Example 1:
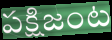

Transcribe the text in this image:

పక్షిజంట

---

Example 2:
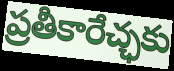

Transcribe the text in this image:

ప్రతీకారేచ్ఛకు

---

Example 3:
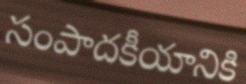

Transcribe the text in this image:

సంపాదకీయానికి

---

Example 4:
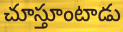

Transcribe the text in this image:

చూస్తూంటాడు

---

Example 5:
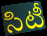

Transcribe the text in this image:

సిటీ